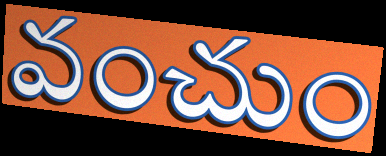
వంచుం